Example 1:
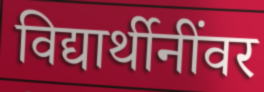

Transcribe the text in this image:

विद्यार्थीनींवर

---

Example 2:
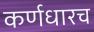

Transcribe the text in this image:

कर्णधारच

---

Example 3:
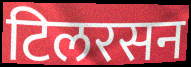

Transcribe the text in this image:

टिलरसन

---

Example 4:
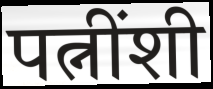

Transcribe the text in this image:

पत्नींशी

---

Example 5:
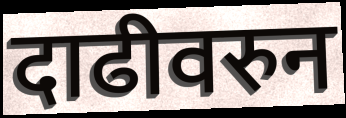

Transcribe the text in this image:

दाढीवरुन